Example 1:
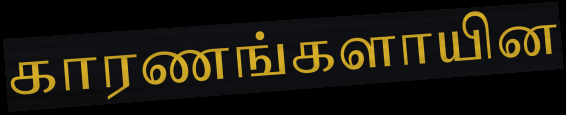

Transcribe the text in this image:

காரணங்களாயின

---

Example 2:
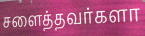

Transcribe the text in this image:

சளைத்தவர்களா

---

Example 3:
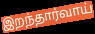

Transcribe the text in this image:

இறந்தார்வாய்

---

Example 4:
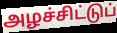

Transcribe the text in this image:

அழச்சிட்டுப்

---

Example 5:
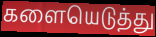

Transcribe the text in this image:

களையெடுத்து